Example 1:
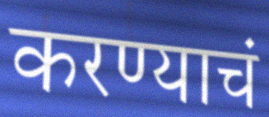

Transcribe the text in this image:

करण्याचं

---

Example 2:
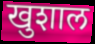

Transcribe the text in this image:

खुशाल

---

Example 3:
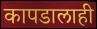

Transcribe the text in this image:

कापडालाही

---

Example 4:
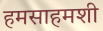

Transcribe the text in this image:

हमसाहमशी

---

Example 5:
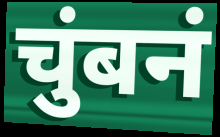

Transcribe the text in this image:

चुंबनं